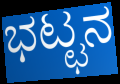
ಭಟ್ಟನ